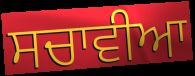
ਸਚਾਵੀਆ